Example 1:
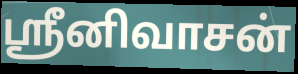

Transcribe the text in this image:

ஸ்ரீனிவாசன்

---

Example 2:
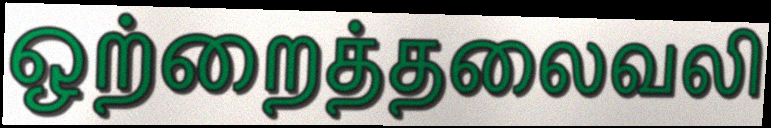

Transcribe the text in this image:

ஒற்றைத்தலைவலி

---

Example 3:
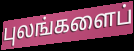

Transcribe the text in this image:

புலங்களைப்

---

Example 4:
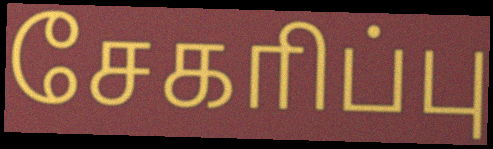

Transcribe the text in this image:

சேகரிப்பு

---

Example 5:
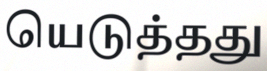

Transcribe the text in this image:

யெடுத்தது